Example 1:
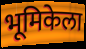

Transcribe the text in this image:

भूमिकेला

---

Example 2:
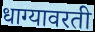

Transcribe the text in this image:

धाग्यावरती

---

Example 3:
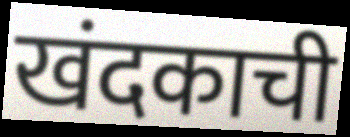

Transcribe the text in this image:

खंदकाची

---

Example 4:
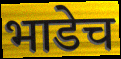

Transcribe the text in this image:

भाडेच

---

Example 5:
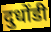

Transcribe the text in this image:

दुधोंडी